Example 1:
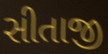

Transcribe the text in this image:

સીતાજી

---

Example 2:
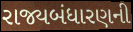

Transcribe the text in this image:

રાજ્યબંધારણની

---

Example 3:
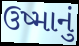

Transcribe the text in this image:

ઉષ્માનું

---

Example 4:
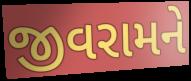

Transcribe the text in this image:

જીવરામને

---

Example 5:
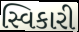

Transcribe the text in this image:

સ્વિકારી